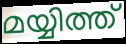
മയ്യിത്ത്